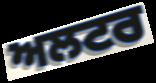
ਅਲਟਰ